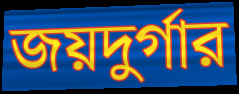
জয়দুর্গার